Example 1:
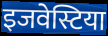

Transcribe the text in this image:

इजवेस्टिया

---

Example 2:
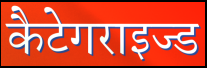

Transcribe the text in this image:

कैटेगराइज्ड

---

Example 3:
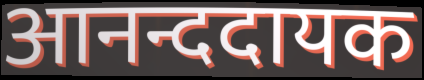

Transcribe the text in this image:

आनन्ददायक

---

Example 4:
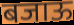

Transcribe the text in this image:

बजाऊ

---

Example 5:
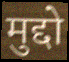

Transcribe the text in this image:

मुद्दो